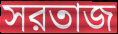
সরতাজ